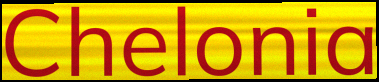
Chelonia